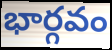
భార్గవం